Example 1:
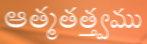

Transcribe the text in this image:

ఆత్మతత్త్వము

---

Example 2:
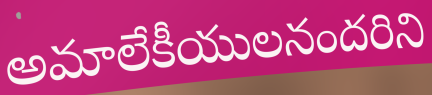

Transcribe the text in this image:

అమాలేకీయులనందరిని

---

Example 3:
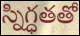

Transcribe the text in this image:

స్నిగ్ధతతో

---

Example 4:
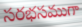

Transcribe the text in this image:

సరభసముగా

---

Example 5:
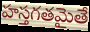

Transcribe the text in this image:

హస్తగతమైతే